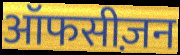
ऑफसीज़न